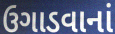
ઉગાડવાનાં